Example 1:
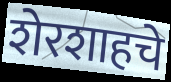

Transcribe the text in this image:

शेरशाहचे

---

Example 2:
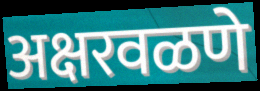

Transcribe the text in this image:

अक्षरवळणे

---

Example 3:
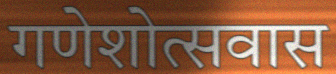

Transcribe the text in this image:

गणेशोत्सवास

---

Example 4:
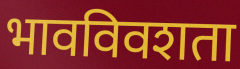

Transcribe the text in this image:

भावविवशता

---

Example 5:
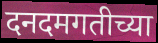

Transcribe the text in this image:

दनदमगतीच्या